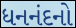
ધનનંદનો